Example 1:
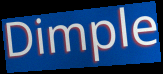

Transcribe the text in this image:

Dimple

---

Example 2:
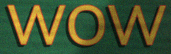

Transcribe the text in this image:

WOW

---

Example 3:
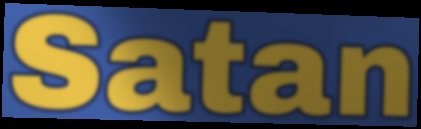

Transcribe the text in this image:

Satan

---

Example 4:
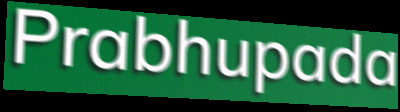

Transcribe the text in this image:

Prabhupada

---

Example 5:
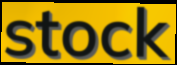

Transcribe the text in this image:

stock